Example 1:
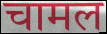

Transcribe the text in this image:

चामल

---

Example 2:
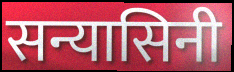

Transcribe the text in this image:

सन्यासिनी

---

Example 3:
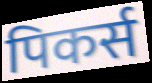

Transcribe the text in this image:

पिकर्स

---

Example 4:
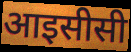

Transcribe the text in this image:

आइसीसी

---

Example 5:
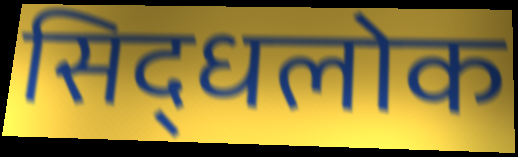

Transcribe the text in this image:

सिद्धलोक